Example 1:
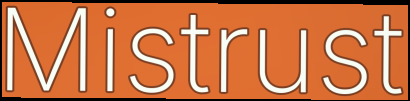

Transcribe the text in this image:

Mistrust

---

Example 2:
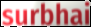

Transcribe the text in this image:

surbhai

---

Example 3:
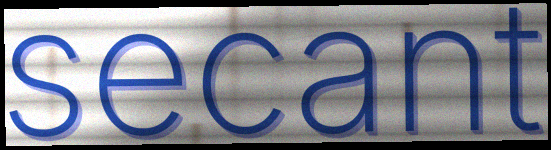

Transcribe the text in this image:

secant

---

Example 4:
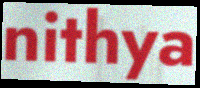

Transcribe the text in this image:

nithya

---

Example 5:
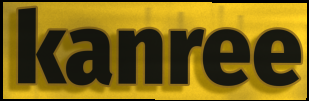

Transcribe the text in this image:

kanree